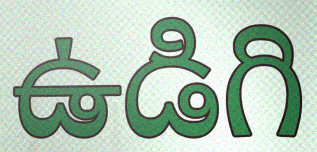
ఉడిగి